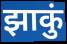
झाकुं